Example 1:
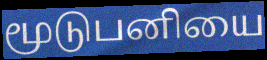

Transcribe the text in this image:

மூடுபனியை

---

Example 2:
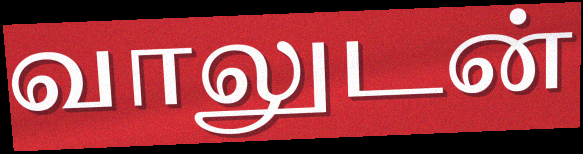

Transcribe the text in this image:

வாலுடன்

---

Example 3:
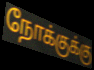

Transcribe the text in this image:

நோக்குக்கு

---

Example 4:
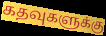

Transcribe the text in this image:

கதவுகளுக்கு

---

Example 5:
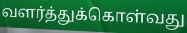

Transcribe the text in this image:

வளர்த்துக்கொள்வது